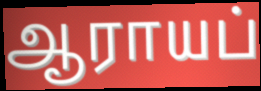
ஆராயப்